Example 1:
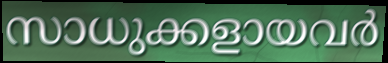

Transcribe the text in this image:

സാധുക്കളായവർ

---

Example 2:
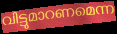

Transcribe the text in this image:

വിട്ടുമാറണമെന്ന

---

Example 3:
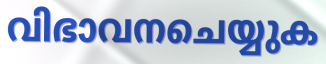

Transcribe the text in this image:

വിഭാവനചെയ്യുക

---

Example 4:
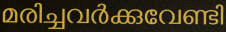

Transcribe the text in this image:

മരിച്ചവർക്കുവേണ്ടി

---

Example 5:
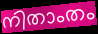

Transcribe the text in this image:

നിതാംതം